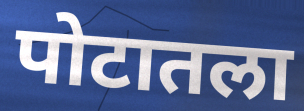
पोटातला